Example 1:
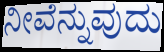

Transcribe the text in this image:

ನೀವೆನ್ನುವುದು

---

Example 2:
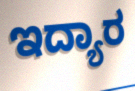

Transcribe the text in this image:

ಇದ್ಯಾರ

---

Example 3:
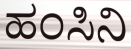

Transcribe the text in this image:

ಹಂಸಿನಿ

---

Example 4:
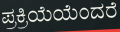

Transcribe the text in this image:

ಪ್ರಕ್ರಿಯೆಯೆಂದರೆ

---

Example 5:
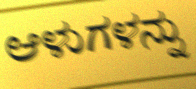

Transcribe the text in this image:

ಆಳುಗಳನ್ನು